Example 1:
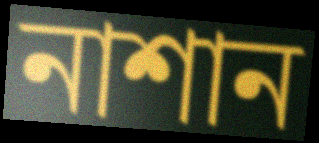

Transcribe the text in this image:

নাশান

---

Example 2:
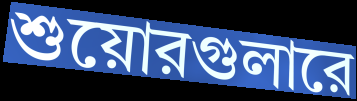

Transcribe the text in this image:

শুয়োরগুলারে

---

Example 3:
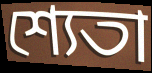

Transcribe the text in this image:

শ্যেতা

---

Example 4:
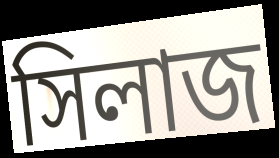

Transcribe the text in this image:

সিলাজ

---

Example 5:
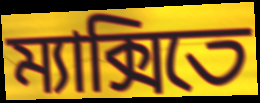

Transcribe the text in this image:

ম্যাক্সিতে